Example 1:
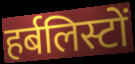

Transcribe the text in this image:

हर्बलिस्टों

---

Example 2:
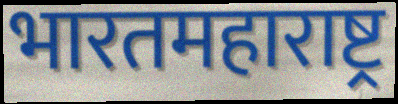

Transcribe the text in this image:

भारतमहाराष्ट्र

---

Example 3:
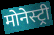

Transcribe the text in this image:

मोनेस्‍ट्री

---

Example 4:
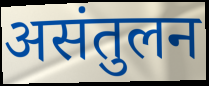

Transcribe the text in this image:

असंतुलन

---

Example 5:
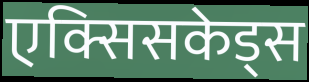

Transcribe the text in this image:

एक्सिसकेड्स